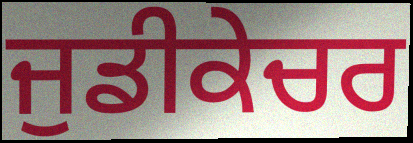
ਜੁਡੀਕੇਚਰ